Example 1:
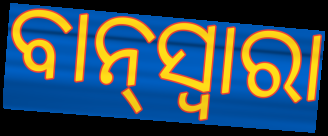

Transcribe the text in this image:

ବାନ୍‌ସ୍ୱାରା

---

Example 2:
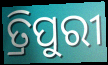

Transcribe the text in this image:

ତ୍ରିପୁରୀ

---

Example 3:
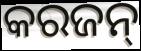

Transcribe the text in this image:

କରଜନ୍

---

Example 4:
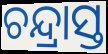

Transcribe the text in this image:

ଚନ୍ଦ୍ରାସ୍ତ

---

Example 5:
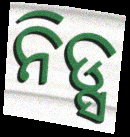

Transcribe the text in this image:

ନିଡ୍ସ